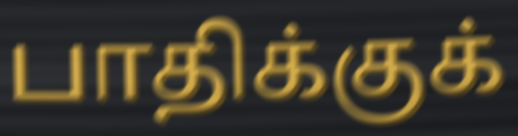
பாதிக்குக்